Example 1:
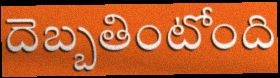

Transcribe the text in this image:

దెబ్బతింటోంది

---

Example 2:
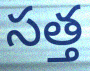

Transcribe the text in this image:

సత్త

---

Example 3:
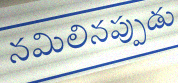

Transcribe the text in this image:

నమిలినప్పుడు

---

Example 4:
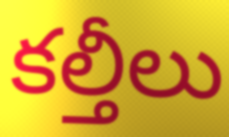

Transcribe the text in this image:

కల్తీలు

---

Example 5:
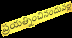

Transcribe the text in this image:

ప్రయత్నించినందువల్ల